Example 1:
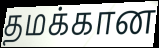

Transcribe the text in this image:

தமக்கான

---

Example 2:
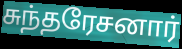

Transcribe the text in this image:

சுந்தரேசனார்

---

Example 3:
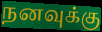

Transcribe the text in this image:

நனவுக்கு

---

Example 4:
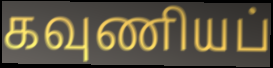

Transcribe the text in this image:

கவுணியப்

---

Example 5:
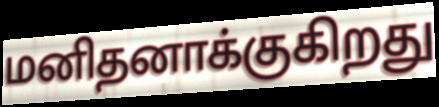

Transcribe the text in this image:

மனிதனாக்குகிறது